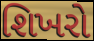
શિખરો